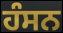
ਹੰਸਨ